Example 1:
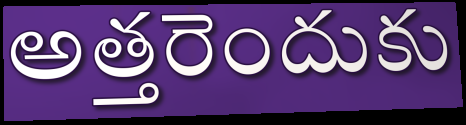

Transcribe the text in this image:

అత్తరెందుకు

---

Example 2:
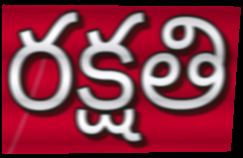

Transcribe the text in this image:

రక్షతి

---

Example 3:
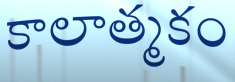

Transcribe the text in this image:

కాలాత్మకం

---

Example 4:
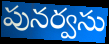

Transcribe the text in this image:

పునర్వసు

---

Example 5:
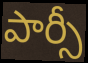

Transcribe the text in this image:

పార్సీ